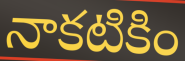
నాకటికిం